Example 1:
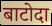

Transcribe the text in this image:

बाटोदा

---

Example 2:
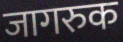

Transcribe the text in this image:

जागरुक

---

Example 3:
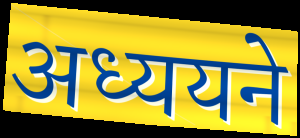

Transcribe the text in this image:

अध्ययने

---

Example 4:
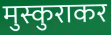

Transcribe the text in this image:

मुस्‍कुराकर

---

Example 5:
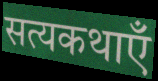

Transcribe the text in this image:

सत्यकथाएँ